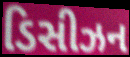
ડિસીઝન